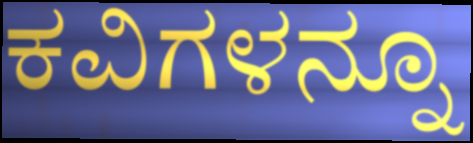
ಕವಿಗಳನ್ನೂ